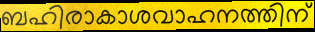
ബഹിരാകാശവാഹനത്തിന്